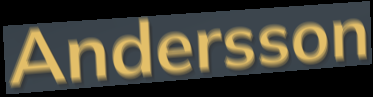
Andersson